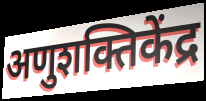
अणुशक्तिकेंद्र